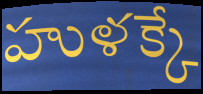
హుళక్కే